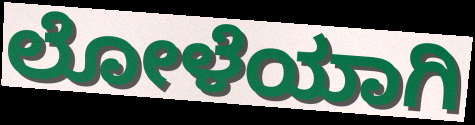
ಲೋಳೆಯಾಗಿ